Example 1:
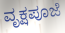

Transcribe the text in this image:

ವೃಕ್ಷಪೂಜೆ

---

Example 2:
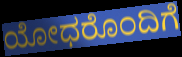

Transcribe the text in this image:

ಯೋಧರೊಂದಿಗೆ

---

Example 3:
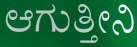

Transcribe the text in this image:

ಆಗುತ್ತೀನಿ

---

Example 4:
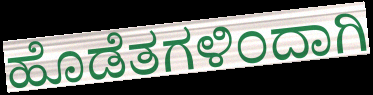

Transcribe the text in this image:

ಹೊಡೆತಗಳಿಂದಾಗಿ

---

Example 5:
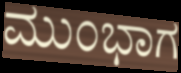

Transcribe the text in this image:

ಮುಂಭಾಗ